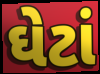
ઘેટાં